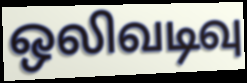
ஒலிவடிவு